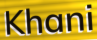
Khani